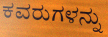
ಕವರುಗಳನ್ನು